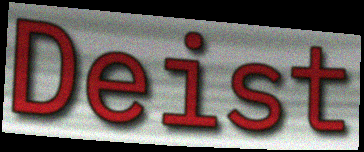
Deist